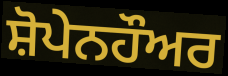
ਸ਼ੋਪੇਨਹੌਅਰ